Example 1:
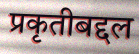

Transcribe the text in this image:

प्रकृतीबद्दल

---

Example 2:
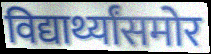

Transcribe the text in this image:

विद्यार्थ्यांसमोर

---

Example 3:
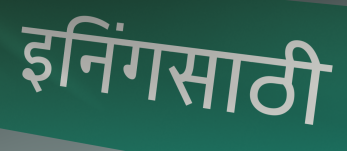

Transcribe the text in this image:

इनिंगसाठी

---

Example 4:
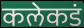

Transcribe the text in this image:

कलेकडं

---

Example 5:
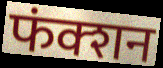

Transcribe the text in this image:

फंक्शन